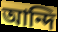
আন্দি